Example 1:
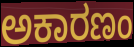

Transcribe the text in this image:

ಅಕಾರಣಂ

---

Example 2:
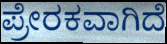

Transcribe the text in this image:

ಪ್ರೇರಕವಾಗಿದೆ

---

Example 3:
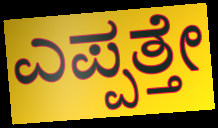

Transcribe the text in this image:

ಎಪ್ಪತ್ತೇ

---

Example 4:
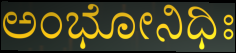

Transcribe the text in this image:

ಅಂಭೋನಿಧಿಃ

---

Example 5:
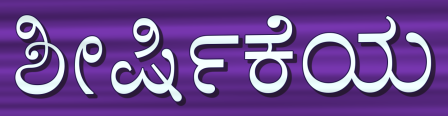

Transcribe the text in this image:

ಶೀರ್ಷಿಕೆಯ